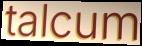
talcum